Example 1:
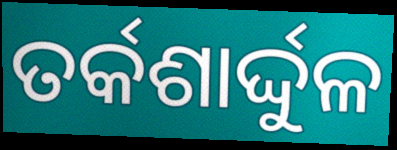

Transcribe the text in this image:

ତର୍କଶାର୍ଦ୍ଦୁଳ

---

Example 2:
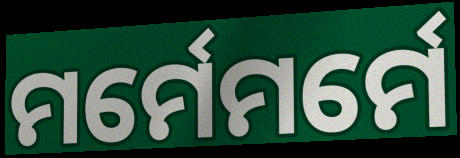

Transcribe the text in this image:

ମର୍ମେମର୍ମେ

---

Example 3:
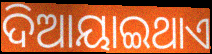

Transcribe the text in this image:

ଦିଆୟାଇଥାଏ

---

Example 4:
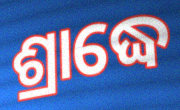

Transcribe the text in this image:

ଶ୍ରାଦ୍ଧେ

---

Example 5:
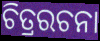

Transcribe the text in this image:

ଚିତ୍ରରଚନା